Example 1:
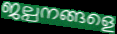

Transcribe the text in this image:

ജല്പനങ്ങളെ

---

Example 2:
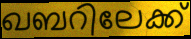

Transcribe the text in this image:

ഖബറിലേക്ക്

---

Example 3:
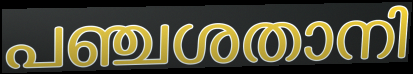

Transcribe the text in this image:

പഞ്ചശതാനി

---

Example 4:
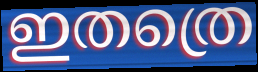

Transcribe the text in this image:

ഇതത്രെ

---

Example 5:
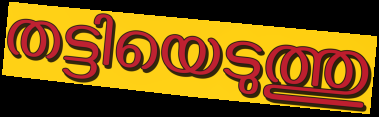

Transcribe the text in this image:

തട്ടിയെടുത്തു